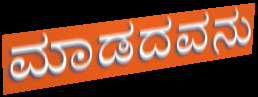
ಮಾಡದವನು